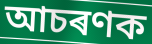
আচৰণক